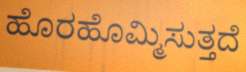
ಹೊರಹೊಮ್ಮಿಸುತ್ತದೆ